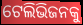
ଟେଲିଭିଜନକୁ